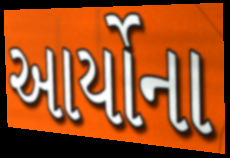
આર્યોના